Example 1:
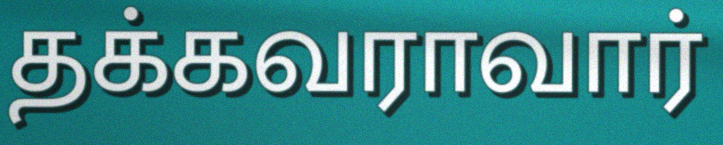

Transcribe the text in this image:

தக்கவராவார்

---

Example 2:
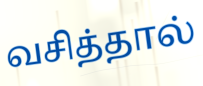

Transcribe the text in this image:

வசித்தால்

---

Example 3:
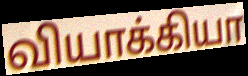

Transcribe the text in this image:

வியாக்கியா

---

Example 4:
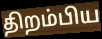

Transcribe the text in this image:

திறம்பிய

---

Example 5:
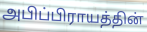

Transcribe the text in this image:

அபிப்பிராயத்தின்